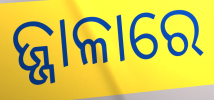
ଜ୍ଜାଳାରେ